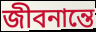
জীবনান্তে